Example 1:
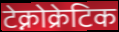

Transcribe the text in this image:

टेक्नोक्रेटिक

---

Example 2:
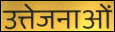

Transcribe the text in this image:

उत्तेजनाओं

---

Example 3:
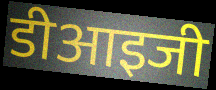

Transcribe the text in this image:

डीआइजी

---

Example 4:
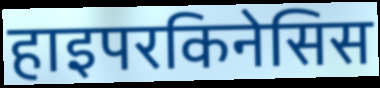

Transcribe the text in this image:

हाइपरकिनेसिस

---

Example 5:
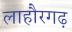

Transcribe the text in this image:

लाहौरगढ़